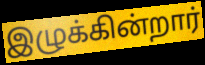
இழுக்கின்றார்